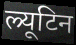
ल्यूटिन